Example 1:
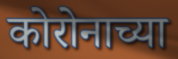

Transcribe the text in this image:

कोरोनाच्या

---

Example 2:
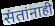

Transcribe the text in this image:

संतांनाही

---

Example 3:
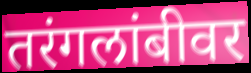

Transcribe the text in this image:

तरंगलांबीवर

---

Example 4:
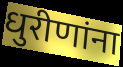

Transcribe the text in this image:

धुरीणांना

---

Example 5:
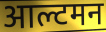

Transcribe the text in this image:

आल्टमन